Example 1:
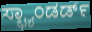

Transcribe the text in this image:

ಸ್ಟ್ಯಾಂಡರ್ಡ್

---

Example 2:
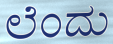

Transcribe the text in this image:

ಲೆಂದು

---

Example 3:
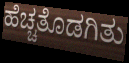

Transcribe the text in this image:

ಹೆಚ್ಚತೊಡಗಿತು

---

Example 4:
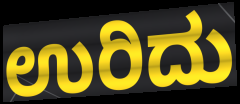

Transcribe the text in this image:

ಉರಿದು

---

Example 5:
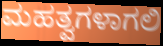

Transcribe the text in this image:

ಮಹತ್ವಗಳಾಗಲಿ